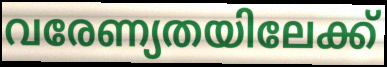
വരേണ്യതയിലേക്ക്